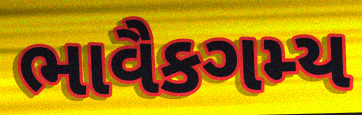
ભાવૈકગમ્ય